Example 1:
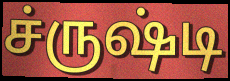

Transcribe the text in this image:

ச்ருஷ்டி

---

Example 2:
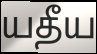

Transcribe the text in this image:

யதீய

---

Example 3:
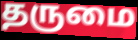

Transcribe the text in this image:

தருமை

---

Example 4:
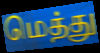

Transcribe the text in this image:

மெத்து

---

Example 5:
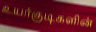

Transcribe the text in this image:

உயர்குடிகளின்